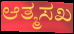
ಆತ್ಮಸಖ